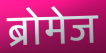
ब्रोमेज